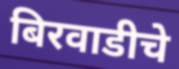
बिरवाडीचे